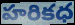
హరికధ